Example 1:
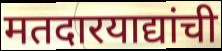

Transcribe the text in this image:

मतदारयाद्यांची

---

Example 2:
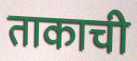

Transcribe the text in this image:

ताकाची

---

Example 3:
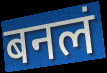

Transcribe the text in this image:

बनलं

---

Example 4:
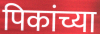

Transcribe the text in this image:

पिकांच्या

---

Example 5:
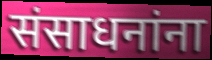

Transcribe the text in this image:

संसाधनांना